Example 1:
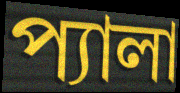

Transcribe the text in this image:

প্যালা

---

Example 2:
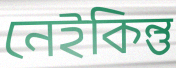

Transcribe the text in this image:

নেইকিন্তু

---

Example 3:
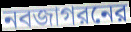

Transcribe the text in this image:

নবজাগরনের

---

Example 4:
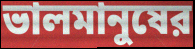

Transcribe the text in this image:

ভালমানুষের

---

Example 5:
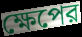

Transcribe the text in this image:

ক্ষেপের